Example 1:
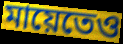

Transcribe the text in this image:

মায়েতেও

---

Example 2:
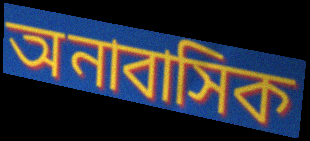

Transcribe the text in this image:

অনাবাসিক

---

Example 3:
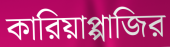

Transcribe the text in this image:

কারিয়াপ্পাজির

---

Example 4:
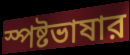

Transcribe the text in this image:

স্পষ্টভাষার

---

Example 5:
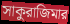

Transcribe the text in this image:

সাকুরাজিমার